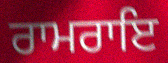
ਰਾਮਰਾਇ